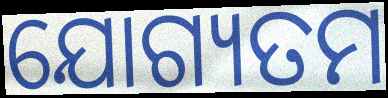
ଯୋଗ୍ୟତମ